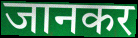
जानकर